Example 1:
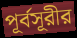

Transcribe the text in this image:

পূর্বসূরীর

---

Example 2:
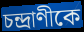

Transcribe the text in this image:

চন্দ্রাণীকে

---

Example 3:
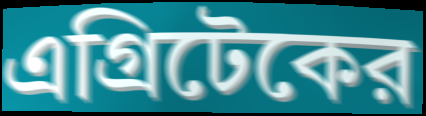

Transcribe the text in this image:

এগ্রিটেকের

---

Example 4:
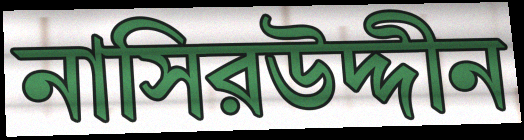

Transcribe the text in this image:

নাসিরউদ্দীন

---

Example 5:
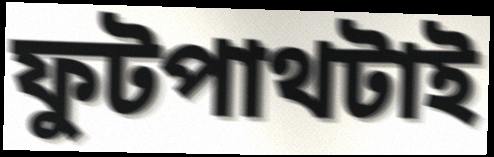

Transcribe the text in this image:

ফুটপাথটাই